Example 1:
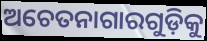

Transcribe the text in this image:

ଅଚେତନାଗାରଗୁଡ଼ିକୁ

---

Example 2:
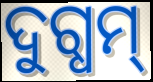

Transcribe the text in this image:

ଦୁଗ୍ଧମ୍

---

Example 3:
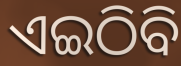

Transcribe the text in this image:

ଏଇଠିବି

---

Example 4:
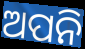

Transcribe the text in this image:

ଅପନି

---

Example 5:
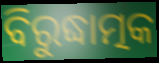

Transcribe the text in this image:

ବିରୁଦ୍ଧାତ୍ମକ